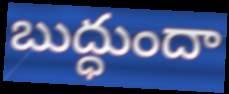
బుద్ధుందా